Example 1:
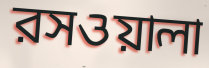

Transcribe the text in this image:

রসওয়ালা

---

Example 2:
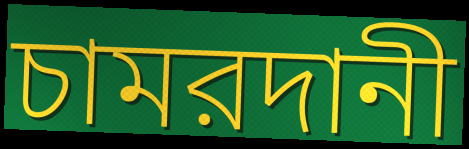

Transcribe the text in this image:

চামরদানী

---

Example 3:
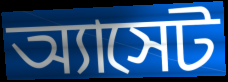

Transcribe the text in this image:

অ্যাসেট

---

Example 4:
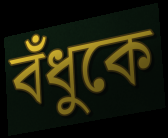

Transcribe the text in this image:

বঁধুকে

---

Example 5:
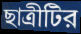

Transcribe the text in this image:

ছাত্রীটির